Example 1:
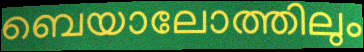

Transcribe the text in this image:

ബെയാലോത്തിലും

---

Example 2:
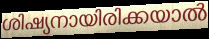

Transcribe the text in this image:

ശിഷ്യനായിരിക്കയാൽ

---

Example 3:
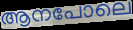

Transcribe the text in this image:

ആനപോലെ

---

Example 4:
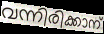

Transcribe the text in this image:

വന്നിരിക്കാന്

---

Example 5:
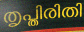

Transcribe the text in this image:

തൃപ്തിരിതി